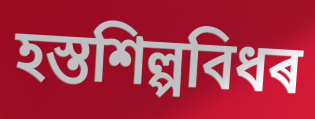
হস্তশিল্পবিধৰ